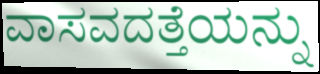
ವಾಸವದತ್ತೆಯನ್ನು